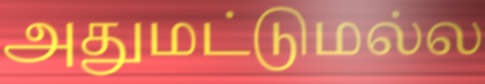
அதுமட்டுமல்ல